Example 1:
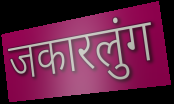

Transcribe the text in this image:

जकारलुंग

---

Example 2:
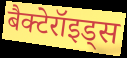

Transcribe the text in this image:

बैक्टेरॉइड्स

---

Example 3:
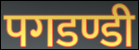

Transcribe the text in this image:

पगडण्डी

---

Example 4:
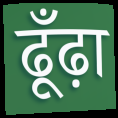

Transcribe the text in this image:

ढूँढ़ा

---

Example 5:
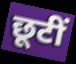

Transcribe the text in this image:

छूटीं